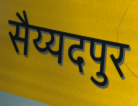
सैय्यदपुर